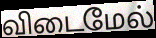
விடைமேல்